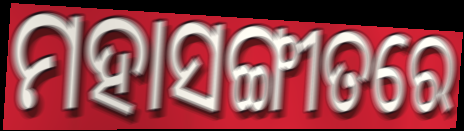
ମହାସଙ୍ଗୀତରେ